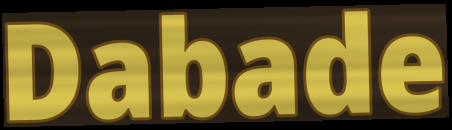
Dabade